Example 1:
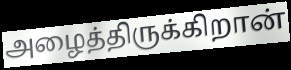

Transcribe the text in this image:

அழைத்திருக்கிறான்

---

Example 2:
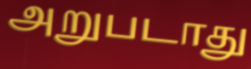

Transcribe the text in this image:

அறுபடாது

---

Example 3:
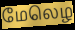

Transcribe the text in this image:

மேலெழ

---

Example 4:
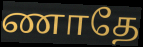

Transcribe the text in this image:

ணாதே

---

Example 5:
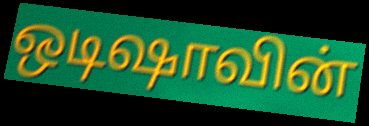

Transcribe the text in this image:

ஒடிஷாவின்